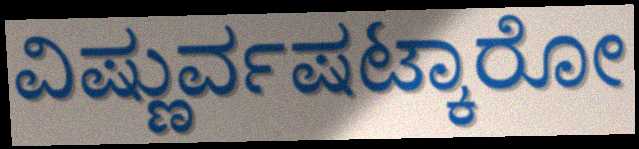
ವಿಷ್ಣುರ್ವಷಟ್ಕಾರೋ